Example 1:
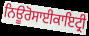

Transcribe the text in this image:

ਨਿਊਰੋਸਾਈਕਾਇਟ੍ਰੀ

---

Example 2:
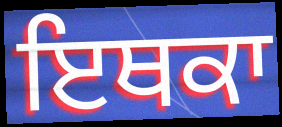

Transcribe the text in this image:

ਇਥਕਾ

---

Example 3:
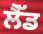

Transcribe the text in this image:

ਲੈੱਡ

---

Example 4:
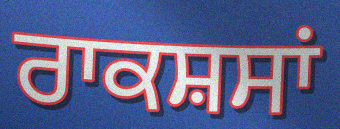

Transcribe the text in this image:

ਰਾਕਸ਼ਸਾਂ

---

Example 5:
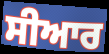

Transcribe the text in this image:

ਸੀਆਰ